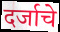
दर्जाचे